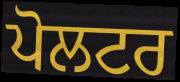
ਪੋਲਟਰ